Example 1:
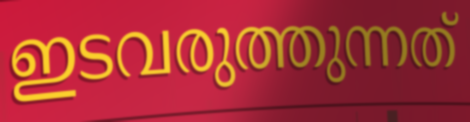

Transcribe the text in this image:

ഇടവരുത്തുന്നത്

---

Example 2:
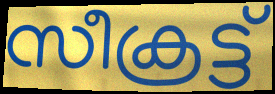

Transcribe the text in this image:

സീക്രട്ട്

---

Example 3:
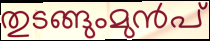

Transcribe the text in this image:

തുടങ്ങുംമുൻപ്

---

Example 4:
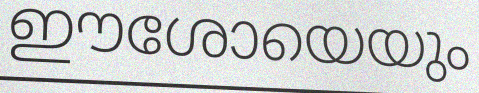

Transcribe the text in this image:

ഈശോയെയും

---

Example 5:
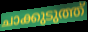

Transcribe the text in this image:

ചാക്കുടുത്ത്